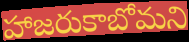
హాజరుకాబోమని